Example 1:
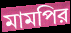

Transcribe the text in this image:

মামপির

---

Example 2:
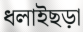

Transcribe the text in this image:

ধলাইছড়া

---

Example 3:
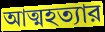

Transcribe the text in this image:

আত্মহত্যার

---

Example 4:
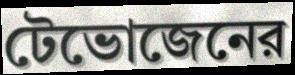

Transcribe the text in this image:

টেভোজেনের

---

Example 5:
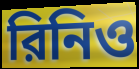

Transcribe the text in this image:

রিনিও